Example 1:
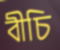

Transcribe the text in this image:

বীচি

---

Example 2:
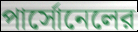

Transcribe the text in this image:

পার্সোনেলের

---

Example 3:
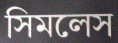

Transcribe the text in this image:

সিমলেস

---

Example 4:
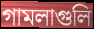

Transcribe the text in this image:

গামলাগুলি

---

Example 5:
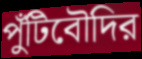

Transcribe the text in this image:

পুঁটিবৌদির